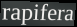
rapifera